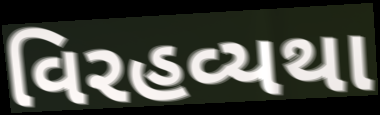
વિરહવ્યથા